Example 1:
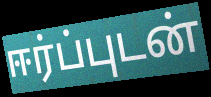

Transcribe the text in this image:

ஈர்ப்புடன்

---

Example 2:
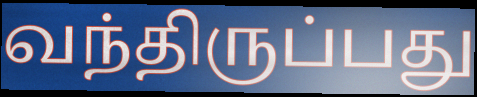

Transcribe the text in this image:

வந்திருப்பது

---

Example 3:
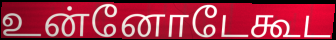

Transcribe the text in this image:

உன்னோடேகூட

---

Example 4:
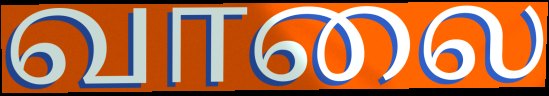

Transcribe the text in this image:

வாலை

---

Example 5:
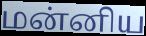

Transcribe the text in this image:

மன்னிய